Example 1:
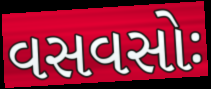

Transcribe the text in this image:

વસવસોઃ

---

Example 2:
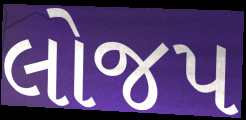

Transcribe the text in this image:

લોજપ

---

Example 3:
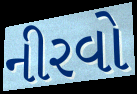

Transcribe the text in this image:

નીરવો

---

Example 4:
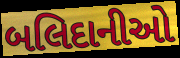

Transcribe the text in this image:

બલિદાનીઓ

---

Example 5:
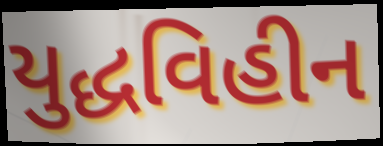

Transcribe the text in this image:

યુદ્ધવિહીન